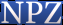
NPZ